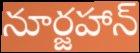
నూర్జహాన్